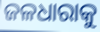
ଜଳଧାରାକୁ